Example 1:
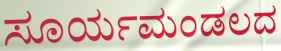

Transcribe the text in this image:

ಸೂರ್ಯಮಂಡಲದ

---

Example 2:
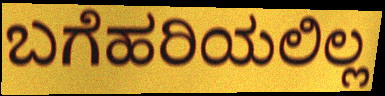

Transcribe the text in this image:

ಬಗೆಹರಿಯಲಿಲ್ಲ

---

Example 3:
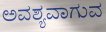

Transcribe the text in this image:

ಅವಶ್ಯವಾಗುವ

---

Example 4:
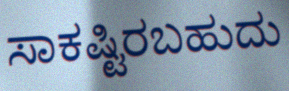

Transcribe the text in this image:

ಸಾಕಷ್ಟಿರಬಹುದು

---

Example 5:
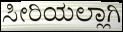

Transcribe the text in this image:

ಸೀರಿಯಲ್ಲಾಗಿ